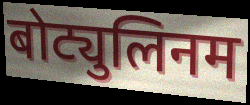
बोट्युलिनम